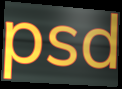
psd